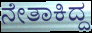
ನೇತಾಕಿದ್ದ